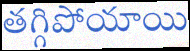
తగ్గిపోయాయి